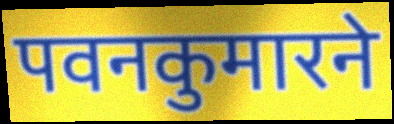
पवनकुमारने